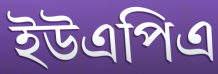
ইউএপিএ